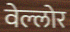
वेल्लोर